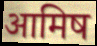
आमिष